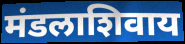
मंडलाशिवाय